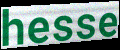
hesse